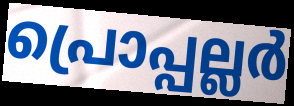
പ്രൊപ്പല്ലർ